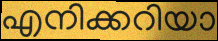
എനിക്കറിയാ